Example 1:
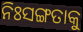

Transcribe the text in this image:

ନିଃସଙ୍ଗତାକୁ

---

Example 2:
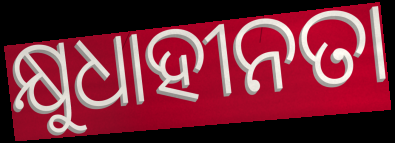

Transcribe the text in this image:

କ୍ଷୁଧାହୀନତା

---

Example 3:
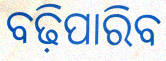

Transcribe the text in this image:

ବଢ଼ିପାରିବ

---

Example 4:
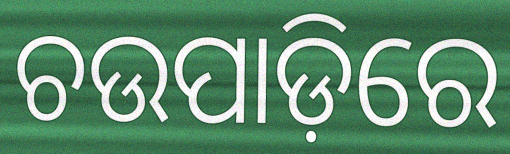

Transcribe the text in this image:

ଚଉପାଡ଼ିରେ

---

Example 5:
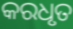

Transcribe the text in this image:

କରଧୃତ